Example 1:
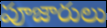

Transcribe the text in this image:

పూజారులు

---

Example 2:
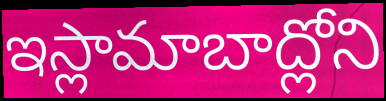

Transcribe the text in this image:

ఇస్లామాబాద్లోని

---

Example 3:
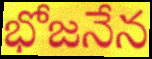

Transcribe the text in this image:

భోజనేన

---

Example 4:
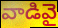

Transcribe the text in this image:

వాడివై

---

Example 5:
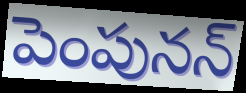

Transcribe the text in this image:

పెంపునన్